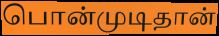
பொன்முடிதான்